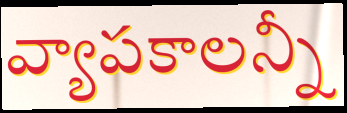
వ్యాపకాలన్నీ